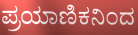
ಪ್ರಯಾಣಿಕನಿಂದ